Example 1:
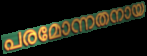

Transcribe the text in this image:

പരമോന്നതനായ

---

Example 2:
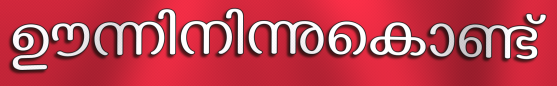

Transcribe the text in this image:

ഊന്നിനിന്നുകൊണ്ട്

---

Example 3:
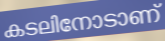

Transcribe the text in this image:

കടലിനോടാണ്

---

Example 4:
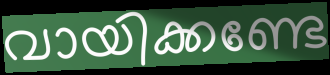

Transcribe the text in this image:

വായിക്കണ്ടേ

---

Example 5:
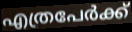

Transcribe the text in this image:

എത്രപേർക്ക്